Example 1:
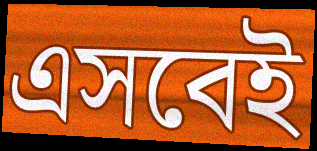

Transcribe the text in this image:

এসবেই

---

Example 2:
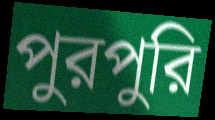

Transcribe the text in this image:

পুরপুরি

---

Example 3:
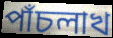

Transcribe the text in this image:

পাঁচলাখ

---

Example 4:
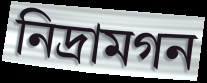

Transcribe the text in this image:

নিদ্রামগন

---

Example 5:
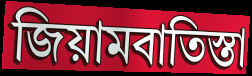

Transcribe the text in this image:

জিয়ামবাতিস্তা